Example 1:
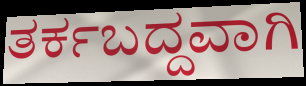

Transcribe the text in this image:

ತರ್ಕಬದ್ದವಾಗಿ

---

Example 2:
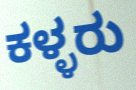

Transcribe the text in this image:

ಕಳ್ಳರು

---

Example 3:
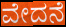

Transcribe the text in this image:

ವೇದನೆ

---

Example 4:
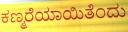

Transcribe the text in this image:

ಕಣ್ಮರೆಯಾಯಿತೆಂದು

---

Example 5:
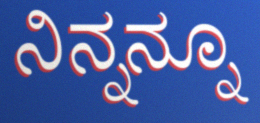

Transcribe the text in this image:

ನಿನ್ನನ್ನೂ